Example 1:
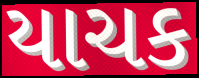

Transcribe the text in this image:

યાચક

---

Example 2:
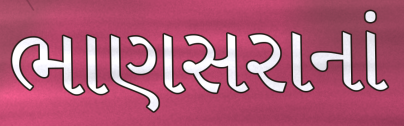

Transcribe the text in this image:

ભાણસરાનાં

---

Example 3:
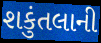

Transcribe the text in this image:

શકુંતલાની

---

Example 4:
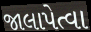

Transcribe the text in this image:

જાલાપેત્વા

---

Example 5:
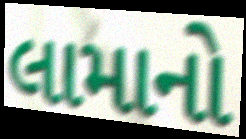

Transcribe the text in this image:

લામાનો